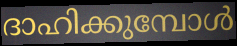
ദാഹിക്കുമ്പോൾ